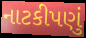
નાટકીપણું